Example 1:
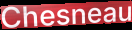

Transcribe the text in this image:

Chesneau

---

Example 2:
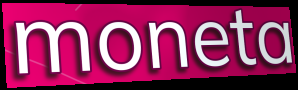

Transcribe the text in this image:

moneta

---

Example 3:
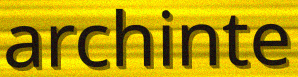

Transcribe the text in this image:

archinte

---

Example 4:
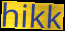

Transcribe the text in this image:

hikk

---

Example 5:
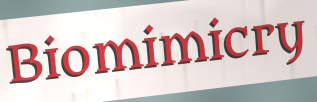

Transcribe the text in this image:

Biomimicry